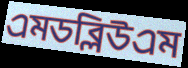
এমডব্লিউএম